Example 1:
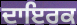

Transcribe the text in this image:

ਦਾਇਰਕ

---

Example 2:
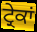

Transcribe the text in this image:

ਟ੍ਰੇਕਾਂ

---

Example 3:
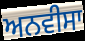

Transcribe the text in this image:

ਅਨਵੀਸਾ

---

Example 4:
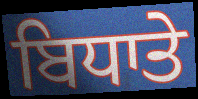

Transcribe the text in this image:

ਬਿਧਾਤੇ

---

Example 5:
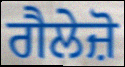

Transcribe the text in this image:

ਗੈਲੇਜ਼ੋ